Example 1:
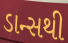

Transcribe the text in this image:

ડાન્સથી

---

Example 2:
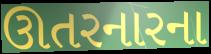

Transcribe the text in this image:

ઊતરનારના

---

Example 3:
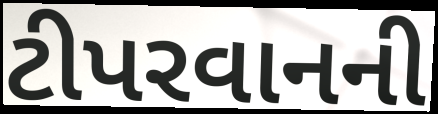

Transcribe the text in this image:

ટીપરવાનની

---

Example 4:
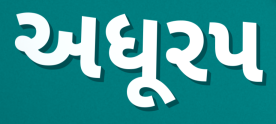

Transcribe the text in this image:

અધૂરપ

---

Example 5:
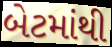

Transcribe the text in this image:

બેટમાંથી